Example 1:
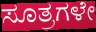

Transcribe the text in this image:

ಸೂತ್ರಗಳೇ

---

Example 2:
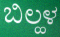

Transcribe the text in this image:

ಬಿಲ್ಹಳ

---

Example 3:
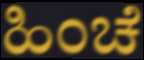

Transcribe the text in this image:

ಹಿಂಚೆ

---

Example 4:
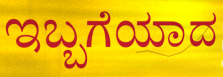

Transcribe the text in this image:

ಇಬ್ಬಗೆಯಾದ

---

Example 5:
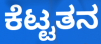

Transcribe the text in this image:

ಕೆಟ್ಟತನ